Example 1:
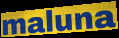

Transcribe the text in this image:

maluna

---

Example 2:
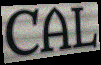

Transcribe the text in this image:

CAL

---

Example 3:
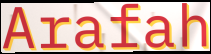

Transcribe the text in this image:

Arafah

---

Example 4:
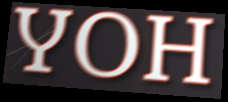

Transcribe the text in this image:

YOH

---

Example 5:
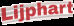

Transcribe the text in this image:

Lijphart